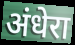
अंधेरा